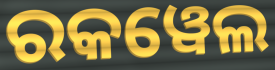
ରକୱେଲ